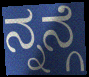
ನ್ನನ್ಗೆ